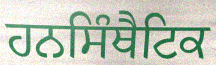
ਹਨਸਿੰਥੈਟਿਕ